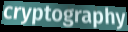
cryptography